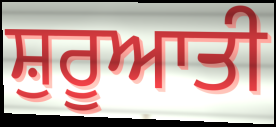
ਸ਼ੁਰੂਆਤੀ